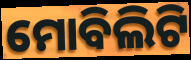
ମୋବିଲିଟି